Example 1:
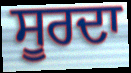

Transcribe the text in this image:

ਸੂਰਦਾ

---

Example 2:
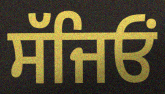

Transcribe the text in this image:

ਸੱਜਿਓਂ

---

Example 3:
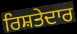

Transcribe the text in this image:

ਰਿਸ਼ਤੇਦਾਰ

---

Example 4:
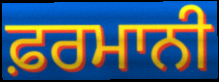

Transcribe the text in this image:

ਫ਼ਰਮਾਨੀ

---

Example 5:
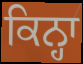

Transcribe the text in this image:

ਕਿਨ੍ਹਾ